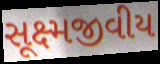
સૂક્ષ્મજીવીય